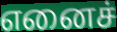
எனைச்